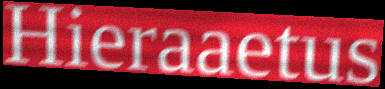
Hieraaetus